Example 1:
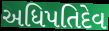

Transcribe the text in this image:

અધિપતિદેવ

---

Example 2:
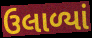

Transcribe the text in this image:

ઉલાળ્યાં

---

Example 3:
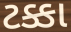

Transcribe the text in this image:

ટક્કા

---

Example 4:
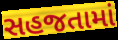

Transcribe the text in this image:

સહજતામાં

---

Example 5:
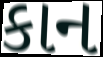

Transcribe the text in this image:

કાન